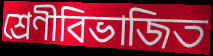
শ্রেণীবিভাজিত